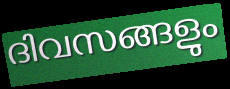
ദിവസങ്ങളും